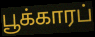
பூக்காரப்